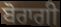
ਬੋਰਾਗੀ